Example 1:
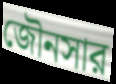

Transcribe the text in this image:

জৌনসার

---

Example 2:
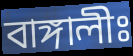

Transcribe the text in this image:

বাঙ্গালীঃ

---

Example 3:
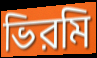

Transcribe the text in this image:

ভিরমি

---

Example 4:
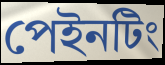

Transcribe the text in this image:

পেইনটিং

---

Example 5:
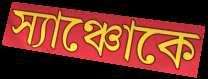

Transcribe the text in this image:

স্যাঞ্চোকে